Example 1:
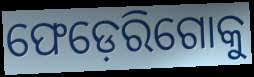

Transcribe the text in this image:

ଫେଡ଼େରିଗୋକୁ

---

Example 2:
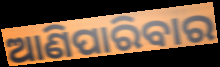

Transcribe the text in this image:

ଆଣିପାରିବାର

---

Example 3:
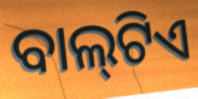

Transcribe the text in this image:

ବାଲ୍‍ଟିଏ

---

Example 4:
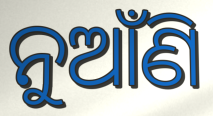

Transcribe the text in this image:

ନୁଆଁଣି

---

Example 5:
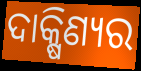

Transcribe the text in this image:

ଦାକ୍ଷିଣ୍ୟର